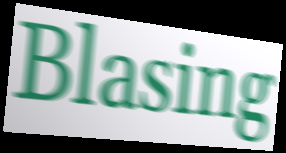
Blasing